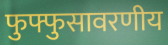
फुफ्फुसावरणीय